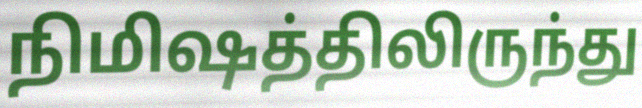
நிமிஷத்திலிருந்து